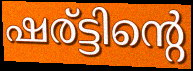
ഷര്ട്ടിന്റെ